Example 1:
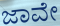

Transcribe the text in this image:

ಜಾವೇ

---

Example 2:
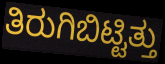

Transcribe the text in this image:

ತಿರುಗಿಬಿಟ್ಟಿತ್ತು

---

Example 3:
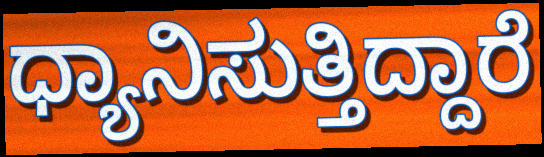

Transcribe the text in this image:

ಧ್ಯಾನಿಸುತ್ತಿದ್ದಾರೆ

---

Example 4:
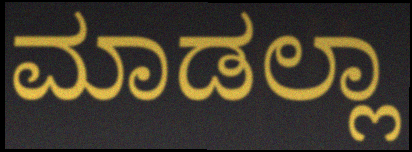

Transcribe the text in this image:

ಮಾಡಲ್ಲಾ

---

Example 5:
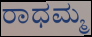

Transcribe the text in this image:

ರಾಧಮ್ಮ